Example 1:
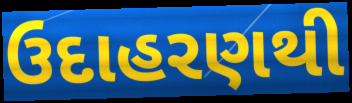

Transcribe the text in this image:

ઉદાહરણથી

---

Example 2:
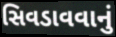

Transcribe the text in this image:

સિવડાવવાનું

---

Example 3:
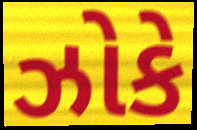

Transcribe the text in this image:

ઝોકે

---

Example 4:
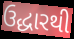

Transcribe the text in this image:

ઉદ્ધારથી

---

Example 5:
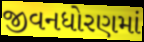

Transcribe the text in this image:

જીવનધોરણમાં